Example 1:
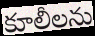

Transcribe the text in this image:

కూలీలను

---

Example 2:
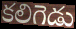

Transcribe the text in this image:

కలిగెడు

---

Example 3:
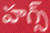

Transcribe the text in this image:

హగ్స్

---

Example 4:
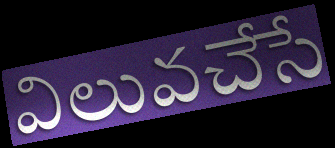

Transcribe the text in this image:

విలువచేసే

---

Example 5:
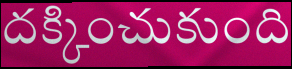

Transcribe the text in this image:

దక్కించుకుంది